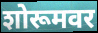
शोरूमवर